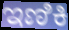
ಇಣಿಕಿ